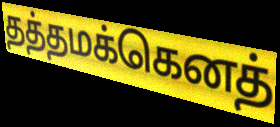
தத்தமக்கெனத்